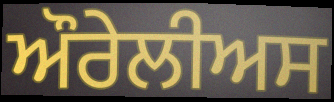
ਔਰੇਲੀਅਸ